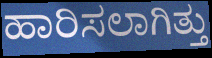
ಹಾರಿಸಲಾಗಿತ್ತು